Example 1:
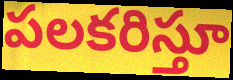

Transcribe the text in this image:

పలకరిస్తూ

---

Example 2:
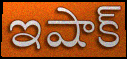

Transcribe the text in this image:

ఇషాక్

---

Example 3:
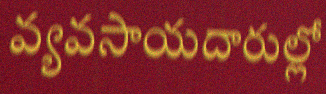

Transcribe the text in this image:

వ్యవసాయదారుల్లో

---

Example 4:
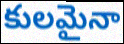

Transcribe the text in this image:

కులమైనా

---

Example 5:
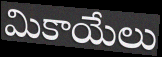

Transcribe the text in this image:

మికాయేలు